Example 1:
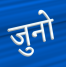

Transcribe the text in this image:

जुनो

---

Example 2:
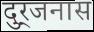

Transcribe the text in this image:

दुर्जनास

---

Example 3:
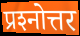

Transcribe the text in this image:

प्रश्‍नोत्तर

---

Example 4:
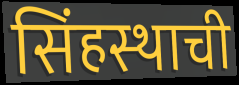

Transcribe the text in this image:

सिंहस्थाची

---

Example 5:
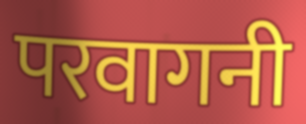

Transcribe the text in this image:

परवागनी